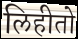
लिहीतो